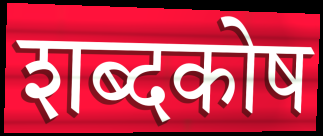
शब्दकोष